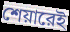
শেয়ারেই